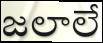
జలాలే